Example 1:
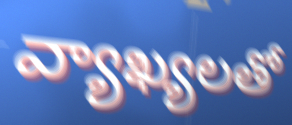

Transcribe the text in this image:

వ్యాఖ్యలతో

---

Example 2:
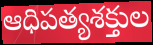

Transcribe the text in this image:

ఆధిపత్యశక్తుల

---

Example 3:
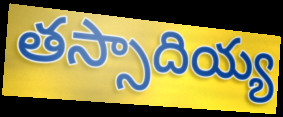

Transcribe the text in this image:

తస్సాదియ్య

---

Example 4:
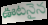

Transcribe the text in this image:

ఊటనైన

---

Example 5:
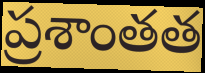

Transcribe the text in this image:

ప్రశాంతత